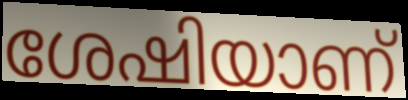
ശേഷിയാണ്